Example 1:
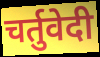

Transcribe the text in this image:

चर्तुवेदी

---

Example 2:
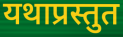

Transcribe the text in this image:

यथाप्रस्तुत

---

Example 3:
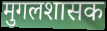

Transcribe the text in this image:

मुगलशासक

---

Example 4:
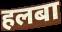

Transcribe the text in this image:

हलबा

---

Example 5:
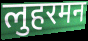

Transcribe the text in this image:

लुहरमन